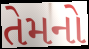
તેમનો